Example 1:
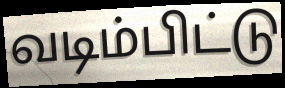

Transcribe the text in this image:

வடிம்பிட்டு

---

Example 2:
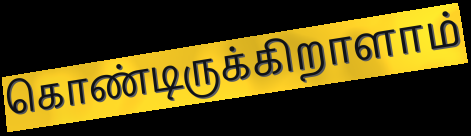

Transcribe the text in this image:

கொண்டிருக்கிறாளாம்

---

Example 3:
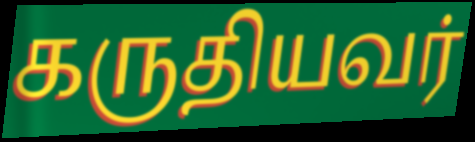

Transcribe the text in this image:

கருதியவர்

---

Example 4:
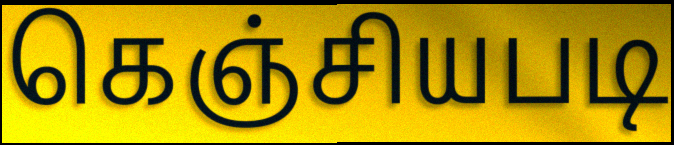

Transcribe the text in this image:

கெஞ்சியபடி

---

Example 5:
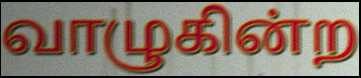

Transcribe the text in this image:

வாழுகின்ற